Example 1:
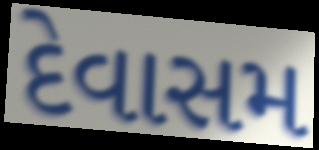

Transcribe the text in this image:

દેવાસમ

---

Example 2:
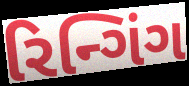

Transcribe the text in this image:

રિન્ગિંગ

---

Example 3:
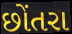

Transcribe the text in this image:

છોંતરા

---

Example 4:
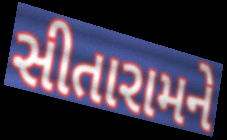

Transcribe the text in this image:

સીતારામને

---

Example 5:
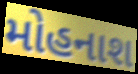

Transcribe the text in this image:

મોહનાશ